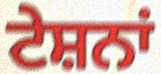
ਟੇਸ਼ਨਾਂ